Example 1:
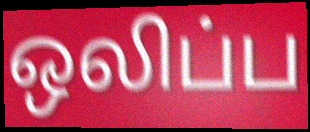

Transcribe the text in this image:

ஒலிப்ப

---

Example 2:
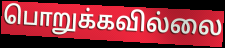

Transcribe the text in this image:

பொறுக்கவில்லை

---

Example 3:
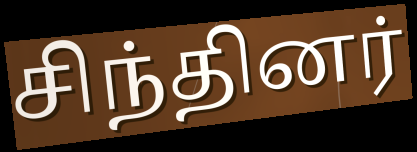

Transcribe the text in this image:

சிந்தினர்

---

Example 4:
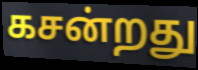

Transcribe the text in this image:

கசன்றது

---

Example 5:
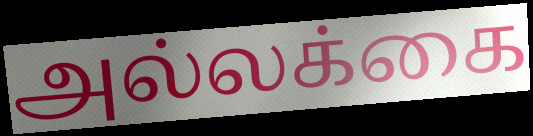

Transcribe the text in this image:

அல்லக்கை